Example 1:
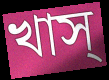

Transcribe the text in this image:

খাস্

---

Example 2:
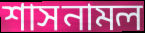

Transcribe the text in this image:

শাসনামল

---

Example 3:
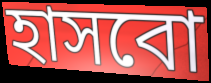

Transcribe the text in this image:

হাসবো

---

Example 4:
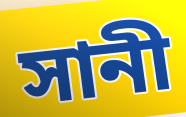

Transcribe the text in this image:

সানী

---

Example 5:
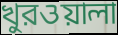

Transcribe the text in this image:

খুরওয়ালা